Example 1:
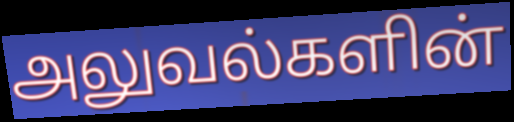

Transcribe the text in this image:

அலுவல்களின்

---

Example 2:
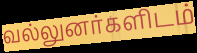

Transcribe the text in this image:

வல்லுனர்களிடம்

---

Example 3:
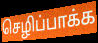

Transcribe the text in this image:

செழிப்பாக்க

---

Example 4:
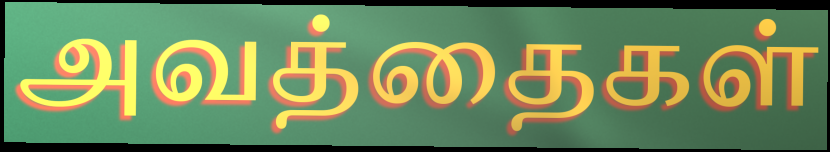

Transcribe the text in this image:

அவத்தைகள்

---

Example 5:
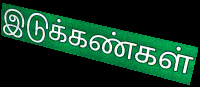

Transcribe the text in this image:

இடுக்கண்கள்